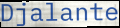
Djalante